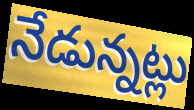
నేడున్నట్లు